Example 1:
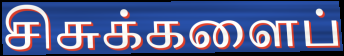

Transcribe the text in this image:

சிசுக்களைப்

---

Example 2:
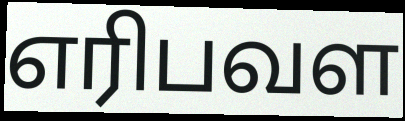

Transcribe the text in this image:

எரிபவள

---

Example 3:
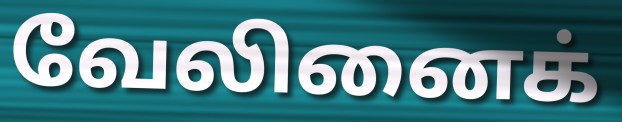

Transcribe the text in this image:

வேலினைக்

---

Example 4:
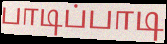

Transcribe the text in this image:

பாடிப்பாடி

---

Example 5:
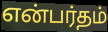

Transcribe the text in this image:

என்பர்தம்